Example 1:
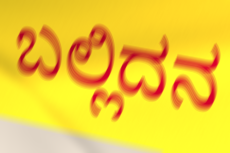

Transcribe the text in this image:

ಬಲ್ಲಿದನ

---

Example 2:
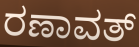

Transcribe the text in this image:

ರಣಾವತ್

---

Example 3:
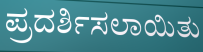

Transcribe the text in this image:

ಪ್ರದರ್ಶಿಸಲಾಯಿತು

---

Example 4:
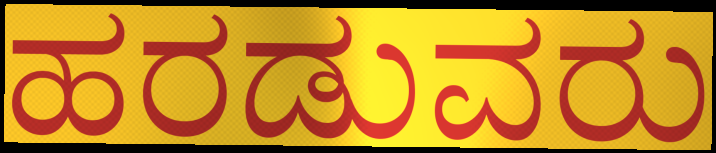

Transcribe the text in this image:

ಹರಡುವರು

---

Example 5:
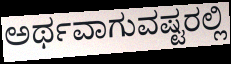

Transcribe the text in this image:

ಅರ್ಥವಾಗುವಷ್ಟರಲ್ಲಿ